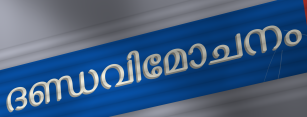
ദണ്ഡവിമോചനം